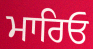
ਮਾਰਿਓ